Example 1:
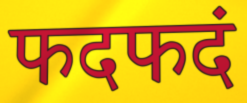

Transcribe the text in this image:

फदफदं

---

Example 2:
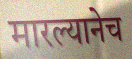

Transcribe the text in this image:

मारल्यानेच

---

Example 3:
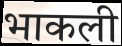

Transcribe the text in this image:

भाकली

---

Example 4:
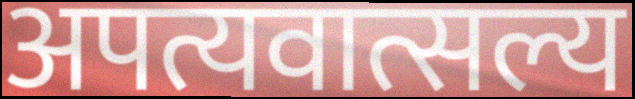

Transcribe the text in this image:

अपत्यवात्सल्य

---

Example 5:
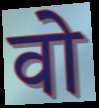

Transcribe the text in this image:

वो